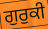
ਗੁਰੁਕੀ